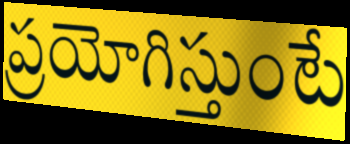
ప్రయోగిస్తుంటే